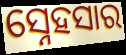
ସ୍ନେହସାର